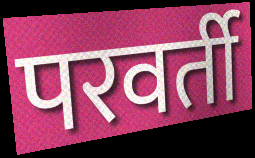
परवर्ती